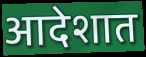
आदेशात